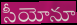
సీయోనూ